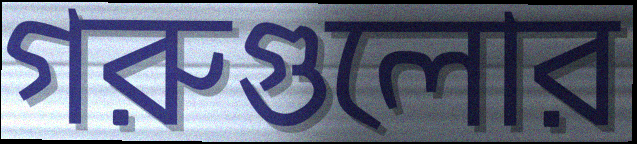
গরুগুলোর